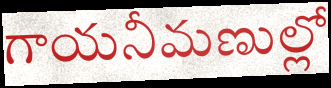
గాయనీమణుల్లో